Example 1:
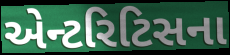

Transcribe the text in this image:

એન્ટરિટિસના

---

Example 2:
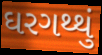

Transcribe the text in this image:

ઘરગથ્થું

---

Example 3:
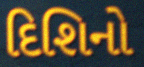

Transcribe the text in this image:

દિશિનો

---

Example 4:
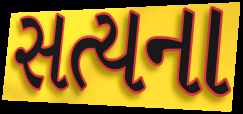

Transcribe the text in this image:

સત્યના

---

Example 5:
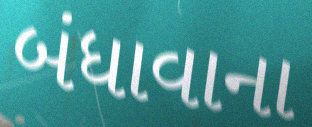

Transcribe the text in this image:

બંધાવાના